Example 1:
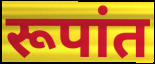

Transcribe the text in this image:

रूपांत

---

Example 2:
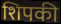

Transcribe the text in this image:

शिपकी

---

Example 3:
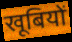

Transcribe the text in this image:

खूबियों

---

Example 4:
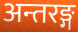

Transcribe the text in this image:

अन्तरङ्ग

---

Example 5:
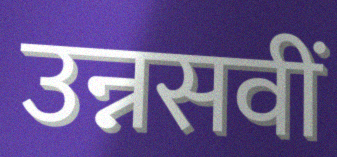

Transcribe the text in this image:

उन्नसवीं